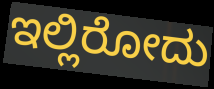
ಇಲ್ಲಿರೋದು